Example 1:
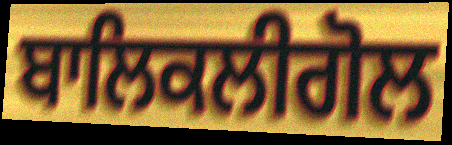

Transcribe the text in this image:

ਬਾਲਿਕਲੀਗੋਲ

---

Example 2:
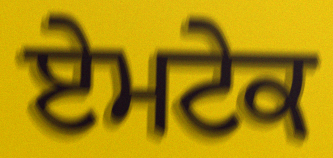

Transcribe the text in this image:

ਏਮਟੇਕ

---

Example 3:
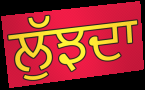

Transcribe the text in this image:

ਲੁੱਝਦਾ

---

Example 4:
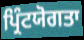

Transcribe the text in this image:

ਪ੍ਰਿੰਟਯੋਗਤਾ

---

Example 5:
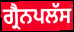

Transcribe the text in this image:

ਗ੍ਰੈਨਪਲੱਸ